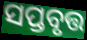
ସପ୍ତବୃତ୍ତ